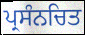
ਪ੍ਰਸੰਨਚਿਤ